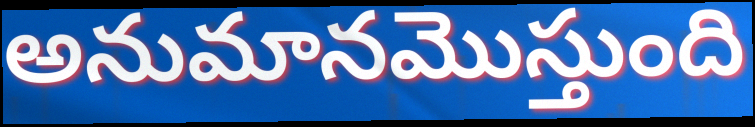
అనుమానమొస్తుంది